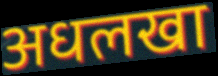
अधलखा